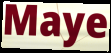
Maye